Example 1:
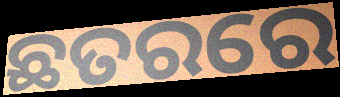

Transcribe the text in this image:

ଛତରରେ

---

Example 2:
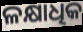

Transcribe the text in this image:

ଳକ୍ଷାଧିକ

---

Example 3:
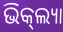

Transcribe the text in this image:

ଭିକ୍‌ଲ୍ୟା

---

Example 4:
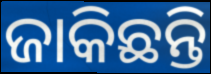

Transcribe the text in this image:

ଜାକିଛନ୍ତି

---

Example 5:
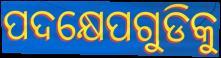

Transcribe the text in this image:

ପଦକ୍ଷେପଗୁଡିକୁ